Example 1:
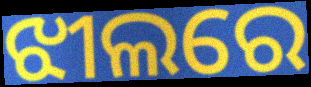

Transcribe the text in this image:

ଝୀଲରେ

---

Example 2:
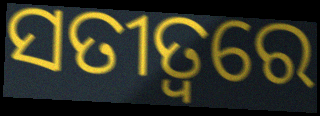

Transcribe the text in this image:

ସତୀତ୍ୱରେ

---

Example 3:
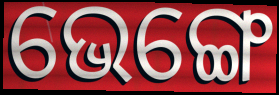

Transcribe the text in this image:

ଭେଙ୍ଗେ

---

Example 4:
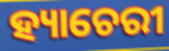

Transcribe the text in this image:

ହ୍ୟାଚେରୀ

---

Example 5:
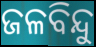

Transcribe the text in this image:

ଜଳବିନ୍ଦୁ